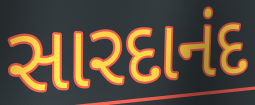
સારદાનંદ